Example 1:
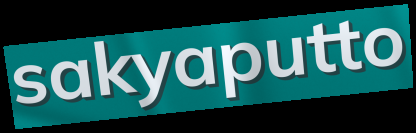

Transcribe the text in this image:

sakyaputto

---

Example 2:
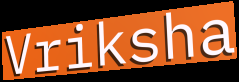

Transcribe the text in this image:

Vriksha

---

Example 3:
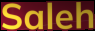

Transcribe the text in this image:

Saleh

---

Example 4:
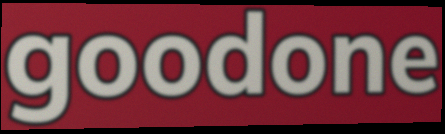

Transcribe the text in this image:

goodone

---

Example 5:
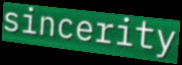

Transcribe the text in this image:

sincerity